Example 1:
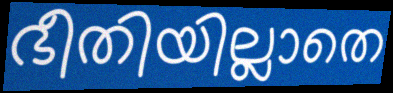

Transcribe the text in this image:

ഭീതിയില്ലാതെ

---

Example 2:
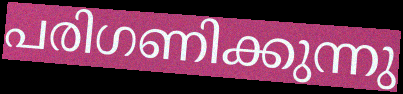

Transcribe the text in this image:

പരിഗണിക്കുന്നു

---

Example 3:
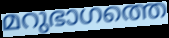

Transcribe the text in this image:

മറുഭാഗത്തെ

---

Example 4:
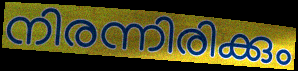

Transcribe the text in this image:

നിരന്നിരിക്കും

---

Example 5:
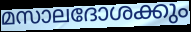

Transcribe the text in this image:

മസാലദോശക്കും